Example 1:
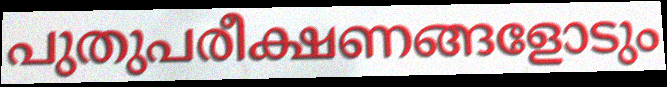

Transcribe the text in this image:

പുതുപരീക്ഷണങ്ങളോടും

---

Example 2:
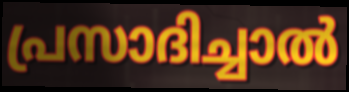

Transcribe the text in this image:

പ്രസാദിച്ചാൽ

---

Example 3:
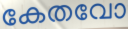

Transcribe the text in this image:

കേതവോ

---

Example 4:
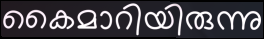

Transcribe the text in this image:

കൈമാറിയിരുന്നു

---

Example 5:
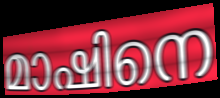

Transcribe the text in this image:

മാഷിനെ